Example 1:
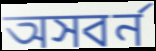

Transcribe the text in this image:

অসবর্ন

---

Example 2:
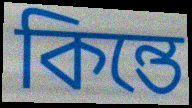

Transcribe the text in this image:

কিন্তে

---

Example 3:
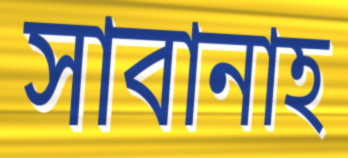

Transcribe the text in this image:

সাবানাহ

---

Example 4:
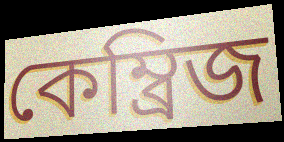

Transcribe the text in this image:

কেম্ব্রিজ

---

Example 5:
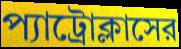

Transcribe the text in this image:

প্যাট্রোক্লাসের